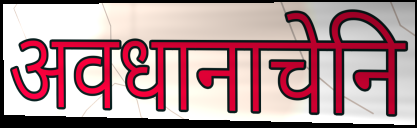
अवधानाचेनि